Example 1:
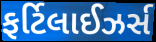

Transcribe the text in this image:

ફર્ટિલાઈઝર્સ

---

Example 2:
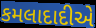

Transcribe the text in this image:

કમલાદાદીએ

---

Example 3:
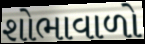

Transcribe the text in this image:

શોભાવાળો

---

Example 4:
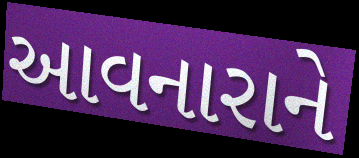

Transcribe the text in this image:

આવનારાને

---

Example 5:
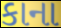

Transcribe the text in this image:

કાના